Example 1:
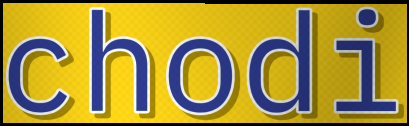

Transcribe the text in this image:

chodi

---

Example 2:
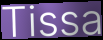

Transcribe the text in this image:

Tissa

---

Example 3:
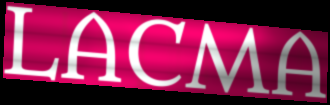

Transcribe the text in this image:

LACMA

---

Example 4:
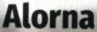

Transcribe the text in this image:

Alorna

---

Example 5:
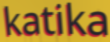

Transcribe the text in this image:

katika